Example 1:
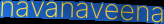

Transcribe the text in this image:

navanaveena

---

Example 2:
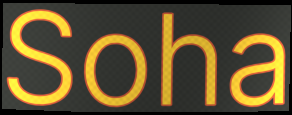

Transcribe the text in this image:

Soha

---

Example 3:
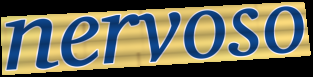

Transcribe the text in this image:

nervoso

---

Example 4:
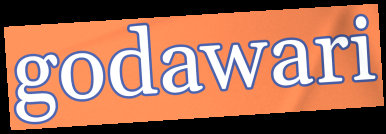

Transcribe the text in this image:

godawari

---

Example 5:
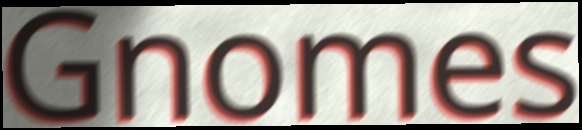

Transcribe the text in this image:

Gnomes